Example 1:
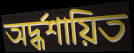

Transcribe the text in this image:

অর্দ্ধশায়িত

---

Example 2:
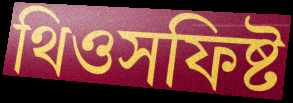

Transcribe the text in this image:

থিওসফিষ্ট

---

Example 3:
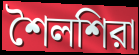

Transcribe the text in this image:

শৈলশিরা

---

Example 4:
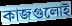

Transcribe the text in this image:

কাজগুলোই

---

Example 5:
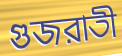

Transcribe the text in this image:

গুজরাতী